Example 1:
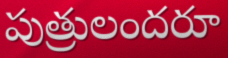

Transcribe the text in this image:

పుత్రులందరూ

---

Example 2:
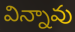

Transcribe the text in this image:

విన్నావు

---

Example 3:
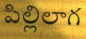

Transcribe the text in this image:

పిల్లిలాగ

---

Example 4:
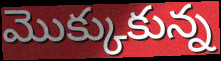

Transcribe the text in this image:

మొక్కుకున్న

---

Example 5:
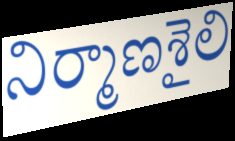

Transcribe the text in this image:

నిర్మాణశైలి